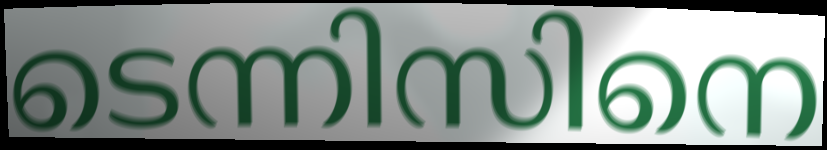
ടെന്നിസിനെ